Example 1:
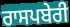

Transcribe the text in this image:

ਰਾਸਪਬੇਰੀ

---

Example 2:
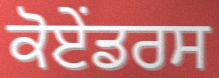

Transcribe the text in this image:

ਕੋਏਂਡਰਸ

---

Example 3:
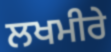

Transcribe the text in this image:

ਲਖਮੀਰੇ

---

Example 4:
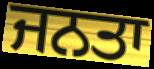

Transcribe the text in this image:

ਜਨਤਾ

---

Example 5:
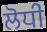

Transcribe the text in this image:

ਲੋਧੀ